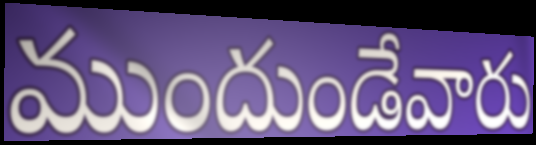
ముందుండేవారు